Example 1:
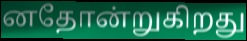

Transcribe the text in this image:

னதோன்றுகிறது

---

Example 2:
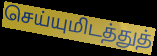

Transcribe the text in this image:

செய்யுமிடத்துத்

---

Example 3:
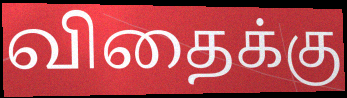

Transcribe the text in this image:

விதைக்கு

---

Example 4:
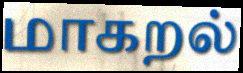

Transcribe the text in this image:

மாகறல்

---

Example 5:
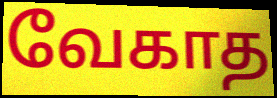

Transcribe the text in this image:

வேகாத